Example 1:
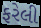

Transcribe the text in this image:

ફરેલી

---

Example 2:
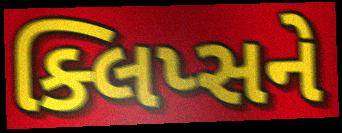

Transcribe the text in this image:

ક્લિપ્સને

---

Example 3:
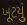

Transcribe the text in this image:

ખૂટયું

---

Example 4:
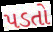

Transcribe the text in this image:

પડતો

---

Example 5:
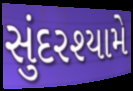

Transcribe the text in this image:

સુંદરશ્યામે